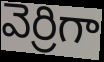
వెర్రిగా